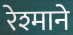
रेश्माने